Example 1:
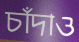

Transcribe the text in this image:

চাঁদাও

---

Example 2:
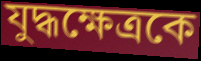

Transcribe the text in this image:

যুদ্ধক্ষেত্রকে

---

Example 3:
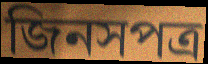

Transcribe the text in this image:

জিনসপত্র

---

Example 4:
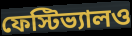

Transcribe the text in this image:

ফেস্টিভ্যালও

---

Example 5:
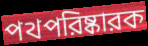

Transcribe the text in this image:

পথপরিষ্কারক